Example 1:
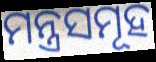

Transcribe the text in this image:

ମନ୍ତ୍ରସମୂହ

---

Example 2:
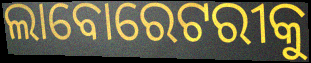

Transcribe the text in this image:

ଲାବୋରେଟରୀକୁ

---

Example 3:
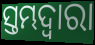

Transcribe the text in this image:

ସ୍ତମ୍ଭଦ୍ୱାରା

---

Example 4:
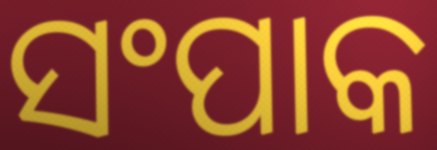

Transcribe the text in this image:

ସଂପାକ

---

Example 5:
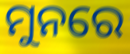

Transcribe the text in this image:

ମୁନରେ